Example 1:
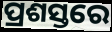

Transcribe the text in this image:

ପ୍ରଶସ୍ତରେ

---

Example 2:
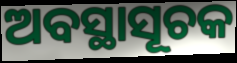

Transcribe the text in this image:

ଅବସ୍ଥାସୂଚକ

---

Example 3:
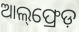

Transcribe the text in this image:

ଆଲ୍‌ଫ୍ରେଡ଼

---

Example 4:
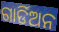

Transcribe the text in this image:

ଗାର୍ଡିଅନ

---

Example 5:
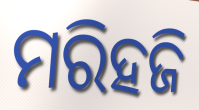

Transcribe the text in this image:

ମରିହଜି